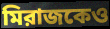
মিরাজকেও